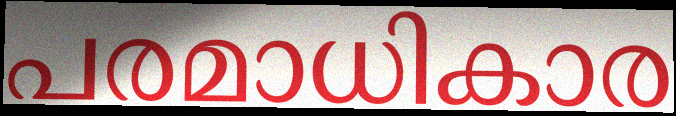
പരമാധികാര